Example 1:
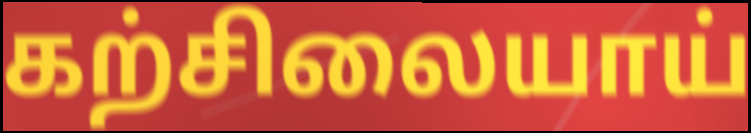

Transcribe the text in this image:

கற்சிலையாய்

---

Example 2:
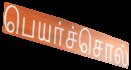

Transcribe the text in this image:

பெயர்ச்சொல்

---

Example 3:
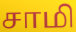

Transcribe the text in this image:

சாமி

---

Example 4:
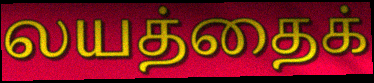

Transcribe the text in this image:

லயத்தைக்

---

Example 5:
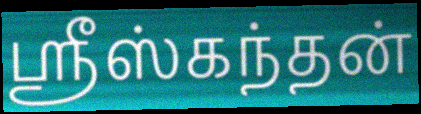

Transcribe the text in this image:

ஸ்ரீஸ்கந்தன்